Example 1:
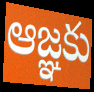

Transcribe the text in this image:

ఆజ్ఞకు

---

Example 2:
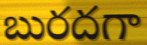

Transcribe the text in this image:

బురదగా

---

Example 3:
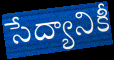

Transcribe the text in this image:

సేద్యానికీ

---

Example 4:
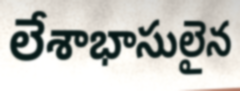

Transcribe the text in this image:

లేశాభాసులైన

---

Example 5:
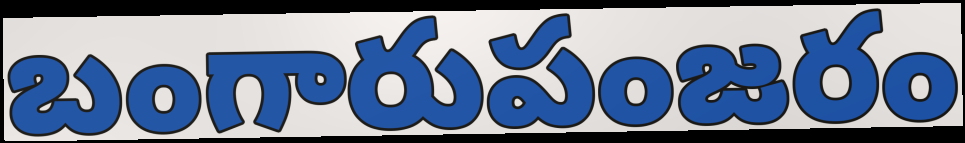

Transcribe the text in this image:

బంగారుపంజరం